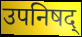
उपनिषद्